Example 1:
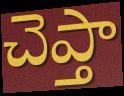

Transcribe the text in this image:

చెప్తా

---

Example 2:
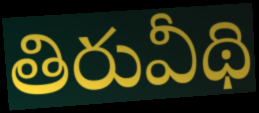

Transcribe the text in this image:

తిరువీథి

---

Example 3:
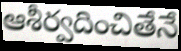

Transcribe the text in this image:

ఆశీర్వదించితేనే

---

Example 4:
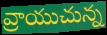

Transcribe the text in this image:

వ్రాయుచున్న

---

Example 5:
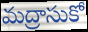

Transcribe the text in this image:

మద్రాసుకో